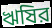
ঋষির